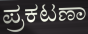
ಪ್ರಕಟಣಾ